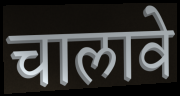
चालावे